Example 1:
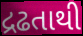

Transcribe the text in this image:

દ્રઢતાથી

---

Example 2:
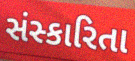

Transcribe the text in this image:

સંસ્કારિતા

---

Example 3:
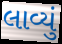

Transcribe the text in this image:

લાવ્યું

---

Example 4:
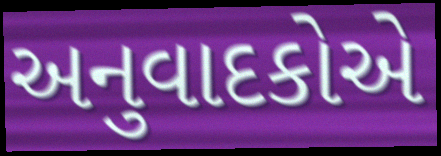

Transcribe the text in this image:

અનુવાદકોએ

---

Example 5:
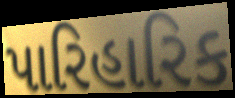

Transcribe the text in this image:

પારિહારિક